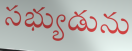
సభ్యుడును